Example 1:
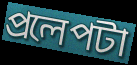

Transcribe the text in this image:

প্রলেপটা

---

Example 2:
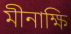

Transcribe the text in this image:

মীনাক্ষি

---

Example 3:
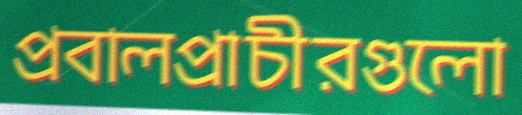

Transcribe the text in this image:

প্রবালপ্রাচীরগুলো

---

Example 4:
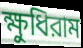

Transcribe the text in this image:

ক্ষুধিরাম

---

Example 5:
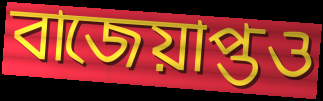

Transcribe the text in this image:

বাজেয়াপ্তও